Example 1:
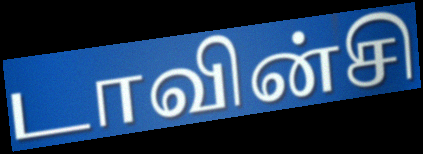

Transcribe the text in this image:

டாவின்சி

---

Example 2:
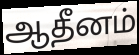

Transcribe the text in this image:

ஆதீனம்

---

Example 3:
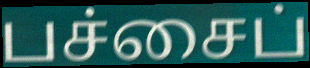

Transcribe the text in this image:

பச்சைப்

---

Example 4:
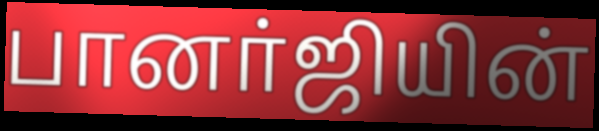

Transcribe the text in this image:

பானர்ஜியின்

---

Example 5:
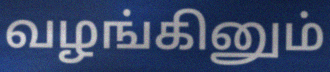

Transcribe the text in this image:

வழங்கினும்